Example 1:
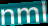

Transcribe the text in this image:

nml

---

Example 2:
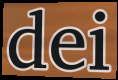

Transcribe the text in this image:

dei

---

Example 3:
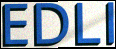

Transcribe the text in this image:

EDLI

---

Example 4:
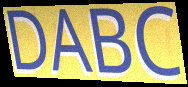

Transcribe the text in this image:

DABC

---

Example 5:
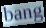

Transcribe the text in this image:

bang